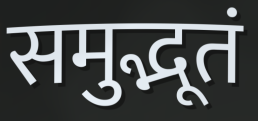
समुद्भूतं